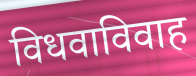
विधवाविवाह